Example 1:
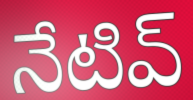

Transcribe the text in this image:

నేటివ్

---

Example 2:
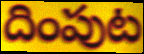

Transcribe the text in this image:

దింపుట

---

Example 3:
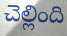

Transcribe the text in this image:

చెల్లింది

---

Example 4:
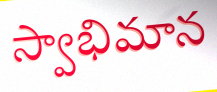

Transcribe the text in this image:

స్వాభిమాన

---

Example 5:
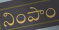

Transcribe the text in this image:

నింపాం